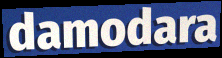
damodara